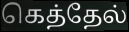
கெத்தேல்